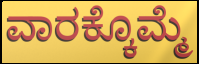
ವಾರಕ್ಕೊಮ್ಮೆ